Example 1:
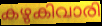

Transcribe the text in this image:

കഴുകിവാരി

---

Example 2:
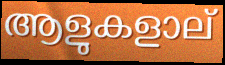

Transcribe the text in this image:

ആളുകളാല്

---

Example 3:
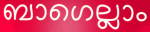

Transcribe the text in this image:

ബാഗെല്ലാം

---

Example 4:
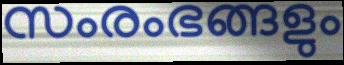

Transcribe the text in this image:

സംരംഭങ്ങളും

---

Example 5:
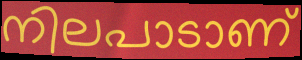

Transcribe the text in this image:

നിലപാടാണ്